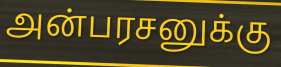
அன்பரசனுக்கு